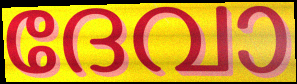
ദേവാ